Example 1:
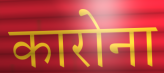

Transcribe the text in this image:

कारोना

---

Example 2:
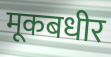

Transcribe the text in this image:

मूकबधीर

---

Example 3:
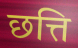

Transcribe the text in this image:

छत्ति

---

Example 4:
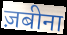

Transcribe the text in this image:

ज़बीना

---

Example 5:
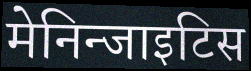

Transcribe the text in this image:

मेनिन्जाइटिस